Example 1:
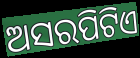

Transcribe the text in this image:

ଅସରପିଟିଏ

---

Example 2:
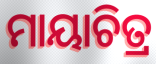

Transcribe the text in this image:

ମାୟାଚିତ୍ର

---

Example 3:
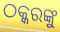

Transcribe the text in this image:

ଠକ୍କରଙ୍କୁ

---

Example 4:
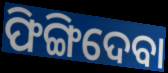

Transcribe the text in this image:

ଫିଙ୍ଗିଦେବା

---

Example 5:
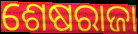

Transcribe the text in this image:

ଶେଷରାଜା